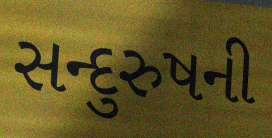
સન્દુરુષની